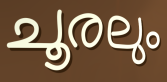
ചൂരലും